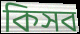
কিসব